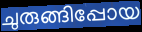
ചുരുങ്ങിപ്പോയ